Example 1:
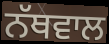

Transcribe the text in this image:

ਨੱਥਵਾਲ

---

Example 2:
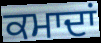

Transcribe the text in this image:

ਕਮਾਦਾਂ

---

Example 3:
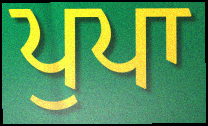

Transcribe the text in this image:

ਪੁਪਾ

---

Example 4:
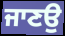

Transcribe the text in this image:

ਜਾਣਉ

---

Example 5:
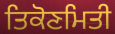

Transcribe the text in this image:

ਤਿਕੋਣਮਿਤੀ